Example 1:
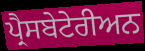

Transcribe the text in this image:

ਪ੍ਰੈਸਬੇਟੇਰੀਅਨ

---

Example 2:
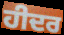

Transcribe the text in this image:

ਹੀਦਰ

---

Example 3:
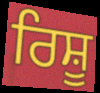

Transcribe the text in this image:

ਰਿਸ਼ੂ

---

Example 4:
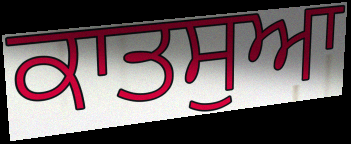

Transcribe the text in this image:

ਕਾਤਸੁਆ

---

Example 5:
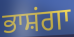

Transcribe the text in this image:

ਭਾਸ਼ਂਗਾ